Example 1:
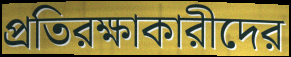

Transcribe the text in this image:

প্রতিরক্ষাকারীদের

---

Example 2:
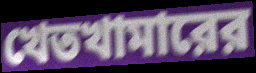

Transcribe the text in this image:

খেতখামারের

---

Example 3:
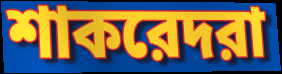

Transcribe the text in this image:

শাকরেদরা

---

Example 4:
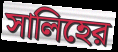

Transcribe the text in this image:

সালিহের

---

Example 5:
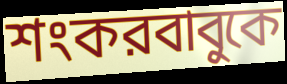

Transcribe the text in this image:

শংকরবাবুকে